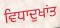
ਵਿਧਾਦੁਖਾਂਤ